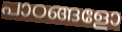
പാഠങ്ങളോ